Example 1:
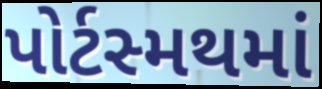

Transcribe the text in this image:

પોર્ટસ્મથમાં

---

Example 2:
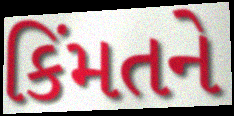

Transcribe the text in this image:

કિંમતને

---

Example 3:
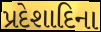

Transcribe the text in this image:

પ્રદેશાદિના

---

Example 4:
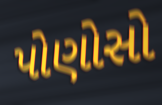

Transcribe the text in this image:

પોણોસો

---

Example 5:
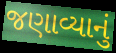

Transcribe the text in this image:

જણાવ્યાનું